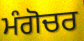
ਮੰਗੋਚਰ